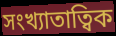
সংখ্যাতাত্বিক